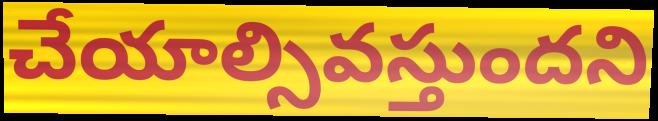
చేయాల్సివస్తుందని